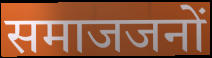
समाजजनों